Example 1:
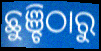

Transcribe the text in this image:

ଛୁଞ୍ଚିଠାରୁ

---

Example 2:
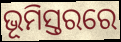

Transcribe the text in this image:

ଭୂମିସ୍ତରରେ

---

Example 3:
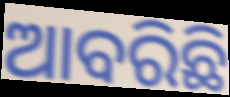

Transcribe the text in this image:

ଆବରିଛି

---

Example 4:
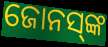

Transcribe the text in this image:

ଜୋନସ୍‌ଙ୍କ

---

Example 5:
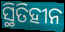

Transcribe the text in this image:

ସ୍ଥିତିହୀନ